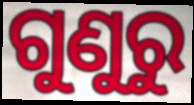
ଗୁଣୁରୁ